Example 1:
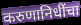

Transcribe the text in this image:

करुणानिधींचा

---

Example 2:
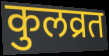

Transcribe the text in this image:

कुलव्रत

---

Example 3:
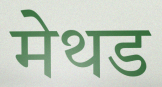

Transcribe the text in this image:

मेथड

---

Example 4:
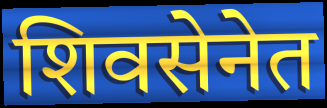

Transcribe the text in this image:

शिवसेनेत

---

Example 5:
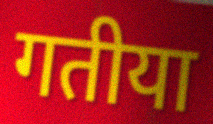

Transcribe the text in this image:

गतीया